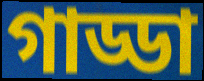
গাড্ডা